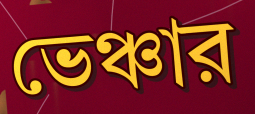
ভেঞ্চার